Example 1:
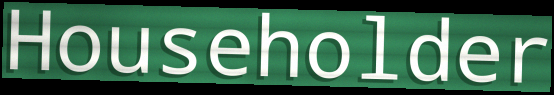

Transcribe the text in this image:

Householder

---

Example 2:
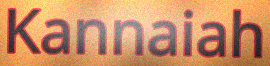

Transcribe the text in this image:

Kannaiah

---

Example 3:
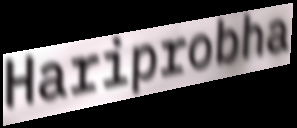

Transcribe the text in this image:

Hariprobha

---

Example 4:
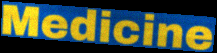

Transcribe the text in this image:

Medicine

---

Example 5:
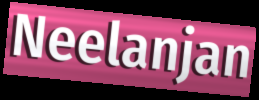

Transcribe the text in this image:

Neelanjan